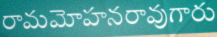
రామమోహనరావుగారు